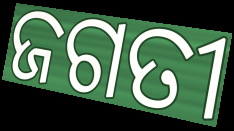
ଜଗତୀ